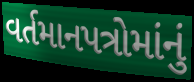
વર્તમાનપત્રોમાંનું